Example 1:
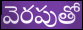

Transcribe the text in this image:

వెరపుతో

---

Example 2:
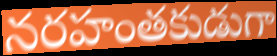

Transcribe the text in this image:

నరహంతకుడుగా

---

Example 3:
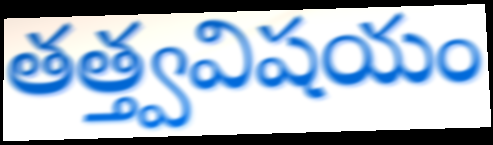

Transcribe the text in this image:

తత్త్వవిషయం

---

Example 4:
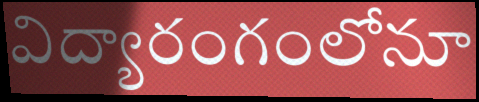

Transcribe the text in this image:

విద్యారంగంలోనూ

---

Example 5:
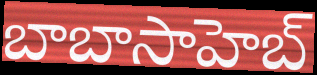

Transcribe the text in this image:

బాబాసాహెబ్